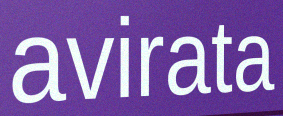
avirata